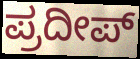
ಪ್ರದೀಪ್